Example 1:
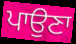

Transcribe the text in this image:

ਪਾਉਣਾ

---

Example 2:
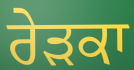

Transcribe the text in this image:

ਰੇੜਕਾ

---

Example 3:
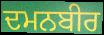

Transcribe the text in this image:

ਦਮਨਬੀਰ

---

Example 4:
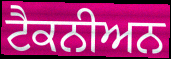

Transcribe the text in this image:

ਟੈਕਨੀਅਨ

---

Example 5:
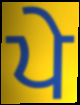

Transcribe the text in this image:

ਪੇ